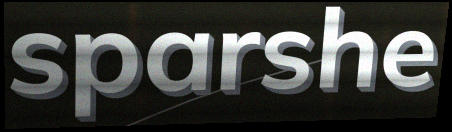
sparshe